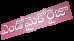
ఎండోమైకోరైజా